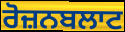
ਰੋਜ਼ਨਬਲਾਟ